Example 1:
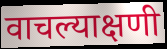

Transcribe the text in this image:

वाचल्याक्षणी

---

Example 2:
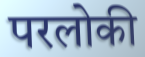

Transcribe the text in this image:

परलोकी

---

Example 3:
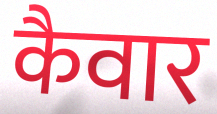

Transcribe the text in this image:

कैवार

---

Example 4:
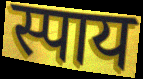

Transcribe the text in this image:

स्पाय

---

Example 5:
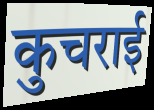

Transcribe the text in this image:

कुचराई